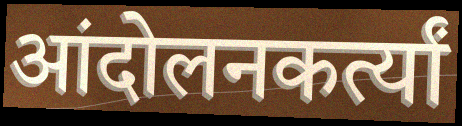
आंदोलनकर्त्यां